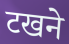
टखने